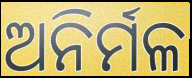
ଅନିର୍ମଳ